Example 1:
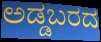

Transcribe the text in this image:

ಅಡ್ಡಬರದ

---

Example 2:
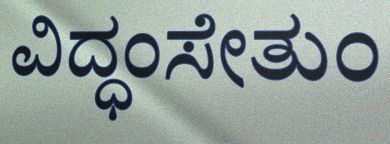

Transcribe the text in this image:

ವಿದ್ಧಂಸೇತುಂ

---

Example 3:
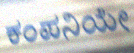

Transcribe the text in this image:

ಕಂಪನಿಯೇ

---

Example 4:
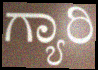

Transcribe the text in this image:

ಗ್ಯಾರಿ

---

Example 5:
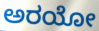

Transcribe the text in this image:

ಅರಯೋ